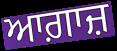
ਆਗ਼ਾਜ਼